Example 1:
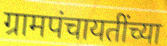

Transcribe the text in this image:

ग्रामपंचायतींच्या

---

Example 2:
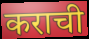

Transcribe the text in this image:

कराची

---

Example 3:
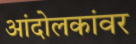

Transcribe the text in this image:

आंदोलकांवर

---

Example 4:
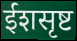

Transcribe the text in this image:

ईशसृष्ट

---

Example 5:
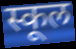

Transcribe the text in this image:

स्कूल